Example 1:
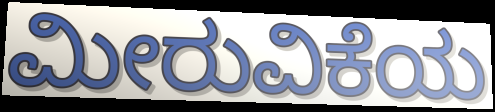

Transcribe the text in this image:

ಮೀರುವಿಕೆಯ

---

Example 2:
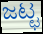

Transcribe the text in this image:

ಜಟ್ಟ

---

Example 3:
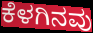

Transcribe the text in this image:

ಕೆಳಗಿನವು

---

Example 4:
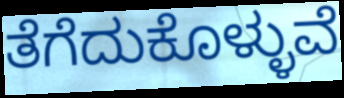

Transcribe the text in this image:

ತೆಗೆದುಕೊಳ್ಳುವೆ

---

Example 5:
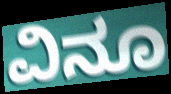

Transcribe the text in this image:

ವಿನೂ